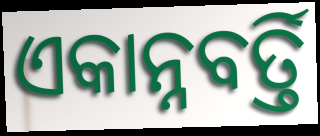
ଏକାନ୍ନବର୍ତ୍ତି